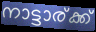
നാട്ടാര്ക്ക്